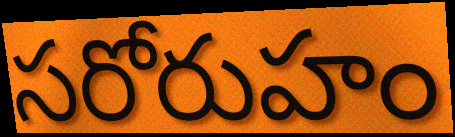
సరోరుహం